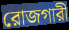
রোজগারী